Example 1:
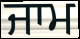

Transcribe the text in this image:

ਜਾਮ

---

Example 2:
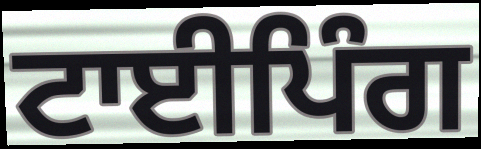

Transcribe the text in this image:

ਟਾਈਪਿੰਗ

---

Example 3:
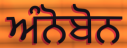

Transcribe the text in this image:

ਅੰਨੋਬੋਨ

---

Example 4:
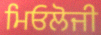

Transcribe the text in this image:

ਮਿਓਲੋਜੀ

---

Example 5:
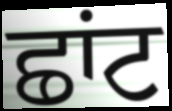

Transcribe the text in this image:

ਛਾਂਟ